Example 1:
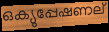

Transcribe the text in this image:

ഒക്യുപ്പേഷണല്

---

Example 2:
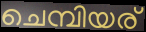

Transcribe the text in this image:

ചെമ്പിയര്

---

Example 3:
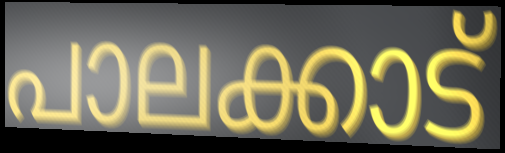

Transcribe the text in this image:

പാലക്കാട്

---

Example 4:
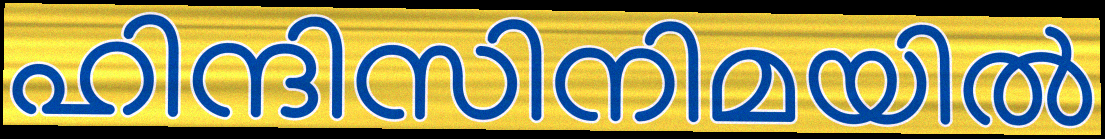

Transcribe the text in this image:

ഹിന്ദിസിനിമയിൽ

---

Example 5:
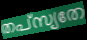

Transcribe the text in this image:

തപ്സ്യതേ